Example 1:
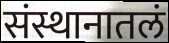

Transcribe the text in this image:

संस्थानातलं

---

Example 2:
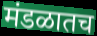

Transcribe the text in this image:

मंडळातच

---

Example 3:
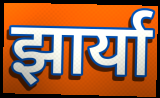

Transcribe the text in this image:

झार्या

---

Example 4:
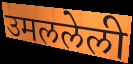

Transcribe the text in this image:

उमललेली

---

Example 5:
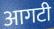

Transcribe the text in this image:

आगटी